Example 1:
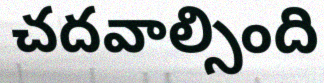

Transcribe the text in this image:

చదవాల్సింది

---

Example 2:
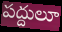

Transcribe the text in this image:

పద్దులూ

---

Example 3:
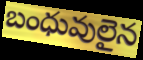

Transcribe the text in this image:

బంధువులైన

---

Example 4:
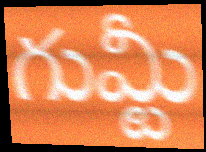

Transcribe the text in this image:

గుమ్టీ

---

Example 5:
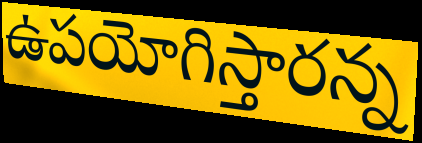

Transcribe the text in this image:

ఉపయోగిస్తారన్న